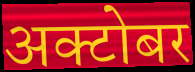
अक्टोबर